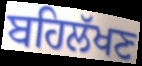
ਬਹਿਲੱਖਣ